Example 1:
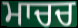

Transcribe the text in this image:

ਮਾਚਚ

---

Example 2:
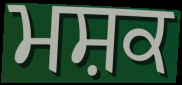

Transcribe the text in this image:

ਮਸ਼ਕ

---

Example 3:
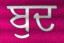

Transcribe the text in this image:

ਬੁਦ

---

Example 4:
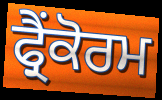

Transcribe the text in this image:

ਫ੍ਰੈਂਕੋਰਮ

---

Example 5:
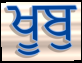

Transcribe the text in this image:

ਖੂਬੁ